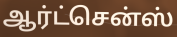
ஆர்ட்சென்ஸ்